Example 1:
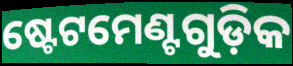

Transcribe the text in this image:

ଷ୍ଟେଟମେଣ୍ଟଗୁଡ଼ିକ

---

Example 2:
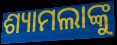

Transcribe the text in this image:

ଶ୍ୟାମଲାଙ୍କୁ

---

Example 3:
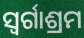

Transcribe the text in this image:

ସ୍ୱର୍ଗାଶ୍ରମ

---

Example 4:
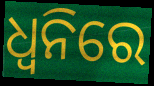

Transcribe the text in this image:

ଧ୍ୱନିରେ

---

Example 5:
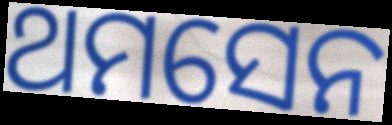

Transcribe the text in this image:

ଥମସେନ